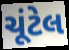
ચૂંટેલ